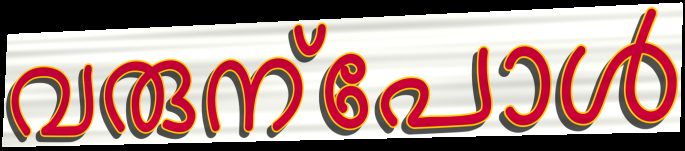
വരുന്പോൾ